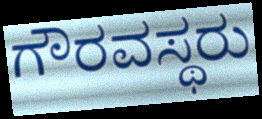
ಗೌರವಸ್ಥರು